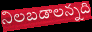
నిలబడాలన్నది